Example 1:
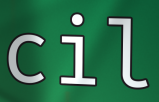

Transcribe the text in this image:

cil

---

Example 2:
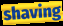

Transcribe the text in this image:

shaving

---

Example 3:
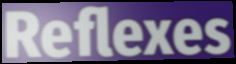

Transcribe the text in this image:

Reflexes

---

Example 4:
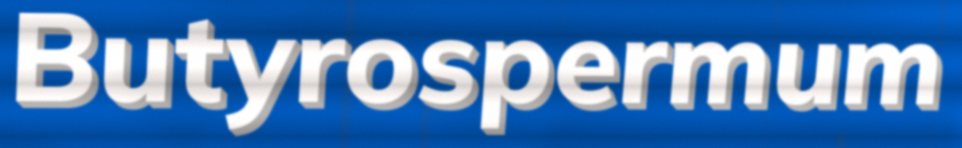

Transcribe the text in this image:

Butyrospermum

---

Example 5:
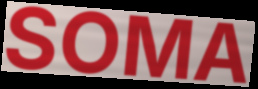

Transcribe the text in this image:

SOMA